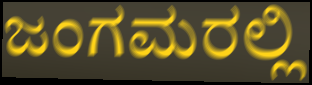
ಜಂಗಮರಲ್ಲಿ